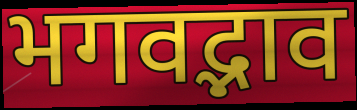
भगवद्भाव